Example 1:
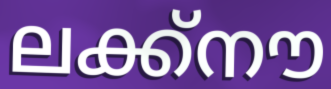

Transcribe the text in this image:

ലക്ക്നൗ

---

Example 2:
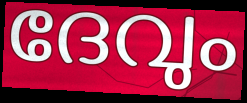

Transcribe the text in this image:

ദേവും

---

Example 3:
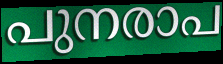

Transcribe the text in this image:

പുനരാപ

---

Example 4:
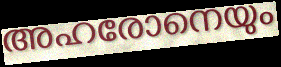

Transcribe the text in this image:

അഹരോനെയും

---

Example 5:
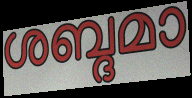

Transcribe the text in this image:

ശബ്ദമാ